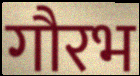
गौरभ